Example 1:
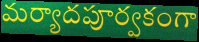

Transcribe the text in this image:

మర్యాదపూర్వకంగా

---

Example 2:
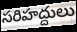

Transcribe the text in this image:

సరిహద్దులు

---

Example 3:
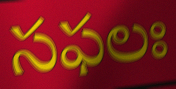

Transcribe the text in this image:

సఫలః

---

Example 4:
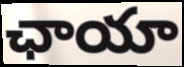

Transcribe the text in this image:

ఛాయా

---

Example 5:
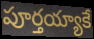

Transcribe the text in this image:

పూర్తయ్యాకే